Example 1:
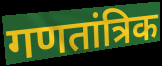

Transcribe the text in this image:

गणतांत्रिक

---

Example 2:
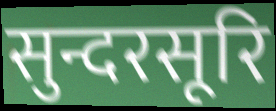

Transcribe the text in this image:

सुन्दरसूरि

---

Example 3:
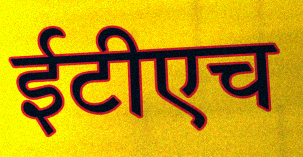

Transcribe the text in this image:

ईटीएच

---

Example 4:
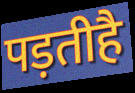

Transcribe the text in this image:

पड़तीहै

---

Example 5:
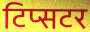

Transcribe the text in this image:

टिप्सटर